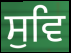
ਸੁਵਿ